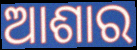
ଆଶାର